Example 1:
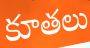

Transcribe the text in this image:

కూతలు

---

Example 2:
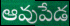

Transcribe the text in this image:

ఆవుపేడ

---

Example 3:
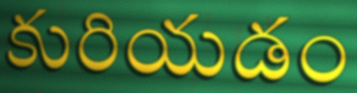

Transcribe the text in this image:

కురియడం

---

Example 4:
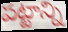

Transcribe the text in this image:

పట్టాన్ని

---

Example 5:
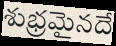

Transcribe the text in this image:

శుభ్రమైనదే